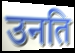
उनति